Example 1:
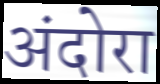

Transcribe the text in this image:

अंदोरा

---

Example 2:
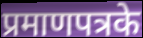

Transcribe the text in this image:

प्रमाणपत्रके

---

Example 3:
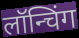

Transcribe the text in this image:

लॉन्चिंग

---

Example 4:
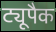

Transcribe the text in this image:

ट्यूपैक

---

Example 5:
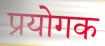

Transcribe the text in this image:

प्रयोगक